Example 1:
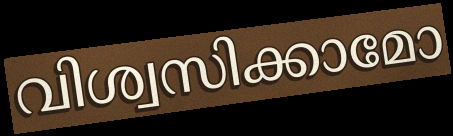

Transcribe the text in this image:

വിശ്വസിക്കാമോ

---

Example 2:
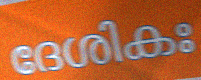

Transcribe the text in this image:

ദേശികഃ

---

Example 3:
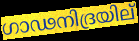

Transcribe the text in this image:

ഗാഢനിദ്രയില്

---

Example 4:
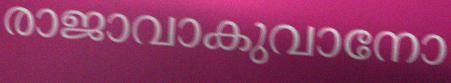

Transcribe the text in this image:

രാജാവാകുവാനോ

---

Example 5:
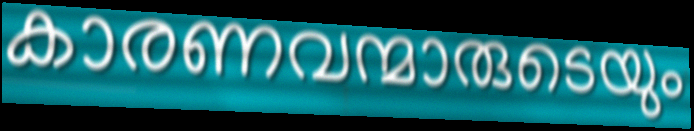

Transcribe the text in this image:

കാരണവന്മാരുടെയും